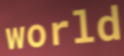
world